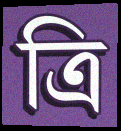
ত্ৰি